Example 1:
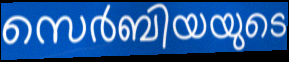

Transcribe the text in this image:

സെർബിയയുടെ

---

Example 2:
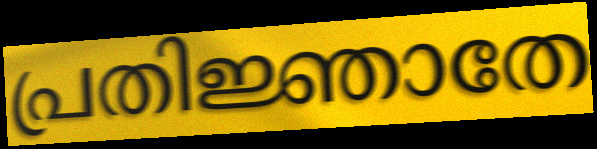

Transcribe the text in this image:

പ്രതിജ്ഞാതേ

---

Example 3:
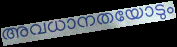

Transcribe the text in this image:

അവധാനതയോടും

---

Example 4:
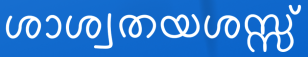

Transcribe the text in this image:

ശാശ്വതയശസ്സ്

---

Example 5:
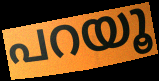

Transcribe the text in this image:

പറയൂ